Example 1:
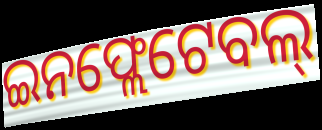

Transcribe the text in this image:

ଇନଫ୍ଲେଟେବଲ୍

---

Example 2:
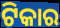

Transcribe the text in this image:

ଟିକାର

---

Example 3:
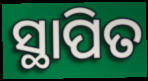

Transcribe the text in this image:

ସ୍ଥାପିତ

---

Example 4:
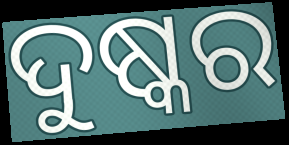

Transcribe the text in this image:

ଦୁଷ୍କର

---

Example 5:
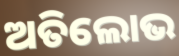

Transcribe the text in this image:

ଅତିଲୋଭ